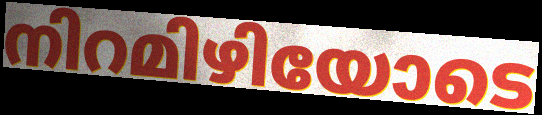
നിറമിഴിയോടെ